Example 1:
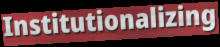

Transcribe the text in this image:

Institutionalizing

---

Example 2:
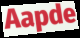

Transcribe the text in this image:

Aapde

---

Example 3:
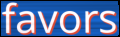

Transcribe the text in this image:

favors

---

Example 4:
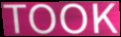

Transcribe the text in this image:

TOOK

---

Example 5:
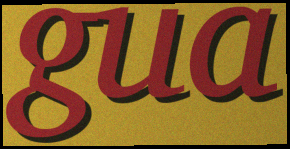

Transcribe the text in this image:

gua